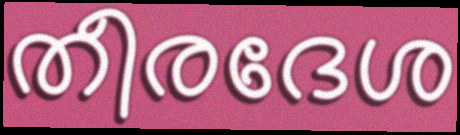
തീരദേശ